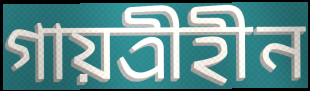
গায়ত্রীহীন